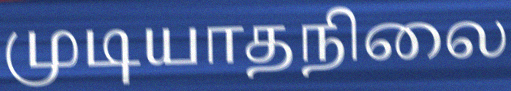
முடியாதநிலை